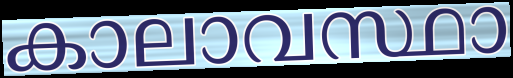
കാലാവസ്ഥാ